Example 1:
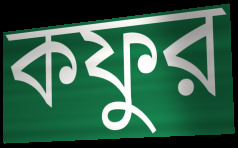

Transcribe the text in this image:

কফুর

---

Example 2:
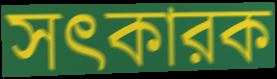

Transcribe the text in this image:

সৎকারক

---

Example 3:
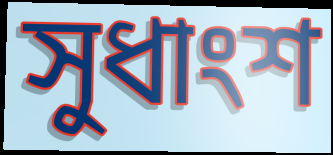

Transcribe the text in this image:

সুধাংশ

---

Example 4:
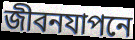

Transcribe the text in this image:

জীবনযাপনে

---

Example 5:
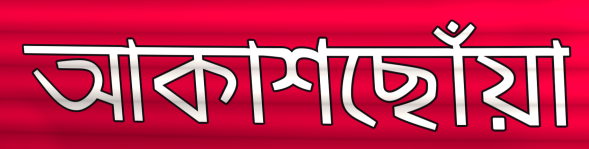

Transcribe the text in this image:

আকাশছোঁয়া